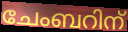
ചേംബറിന്